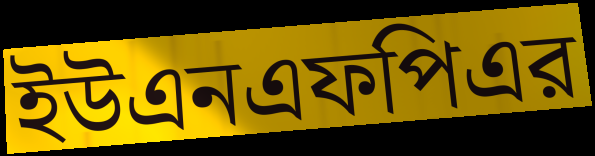
ইউএনএফপিএর